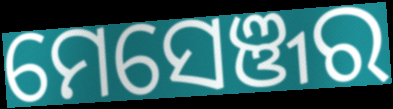
ମେସେଞ୍ଜର